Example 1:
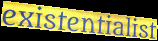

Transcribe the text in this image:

existentialist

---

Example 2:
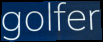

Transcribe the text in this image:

golfer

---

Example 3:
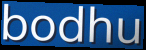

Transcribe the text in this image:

bodhu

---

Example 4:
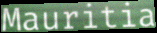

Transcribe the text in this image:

Mauritia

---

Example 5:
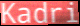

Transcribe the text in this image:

Kadri